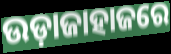
ଉଡ଼ାଜାହାଜରେ